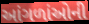
આંગળાંઓની